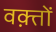
वक़्तों